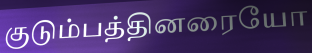
குடும்பத்தினரையோ